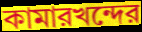
কামারখন্দের